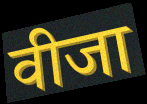
वीजा